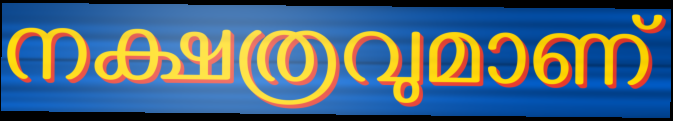
നക്ഷത്രവുമാണ്